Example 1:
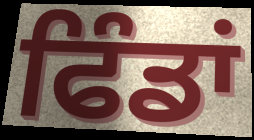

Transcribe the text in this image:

ਫਿੰਡਾਂ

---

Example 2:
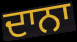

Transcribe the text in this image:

ਦਾਨਾ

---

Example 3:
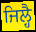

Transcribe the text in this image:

ਜਿਲ੍ਹੈ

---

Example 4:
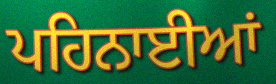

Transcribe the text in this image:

ਪਹਿਨਾਈਆਂ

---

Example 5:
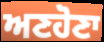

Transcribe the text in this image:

ਅਣਹੋਣਾ